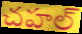
చహల్